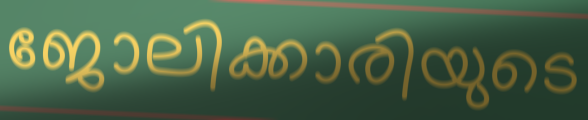
ജോലിക്കാരിയുടെ